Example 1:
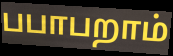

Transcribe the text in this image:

பபாபறாம்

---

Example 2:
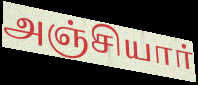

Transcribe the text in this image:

அஞ்சியார்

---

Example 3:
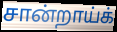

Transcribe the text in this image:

சான்றாய்க்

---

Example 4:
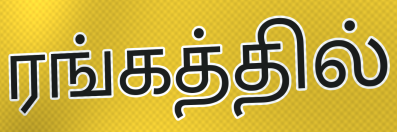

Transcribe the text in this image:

ரங்கத்தில்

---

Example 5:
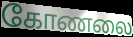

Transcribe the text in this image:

கோணலை